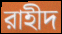
রাহীদ